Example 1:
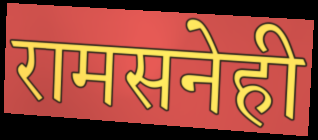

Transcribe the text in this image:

रामसनेही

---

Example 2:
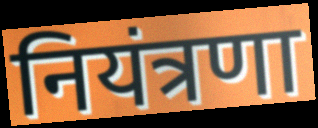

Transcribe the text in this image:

नियंत्रणा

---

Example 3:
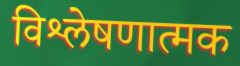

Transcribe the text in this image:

विश्लेषणात्मक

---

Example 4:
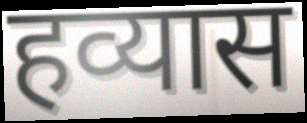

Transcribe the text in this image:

हव्यास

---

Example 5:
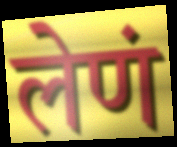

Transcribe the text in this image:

लेणं